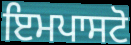
ਇਮਪਾਸਟੋ